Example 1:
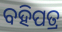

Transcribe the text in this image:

ବହିପତ୍ର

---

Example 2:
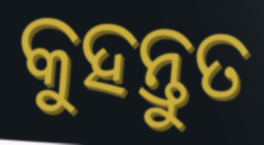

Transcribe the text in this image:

କୁହନ୍ତୁତ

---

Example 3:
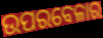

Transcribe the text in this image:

ଉପରବେଳାର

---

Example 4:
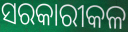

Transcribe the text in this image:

ସରକାରୀକଳ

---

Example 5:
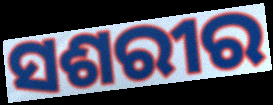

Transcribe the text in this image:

ସଶରୀର